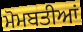
ਮੋਮਬਤੀਆਂ